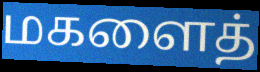
மகளைத்